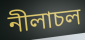
নীলাচল